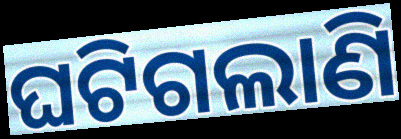
ଘଟିଗଲାଣି